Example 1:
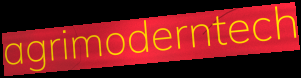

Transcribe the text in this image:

agrimoderntech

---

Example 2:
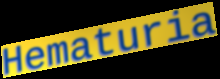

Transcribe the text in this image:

Hematuria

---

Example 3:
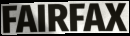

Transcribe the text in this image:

FAIRFAX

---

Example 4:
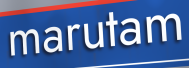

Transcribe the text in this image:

marutam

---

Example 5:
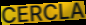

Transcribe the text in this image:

CERCLA